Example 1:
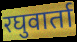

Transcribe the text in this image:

रघुवार्ता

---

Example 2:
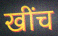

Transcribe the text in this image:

खींच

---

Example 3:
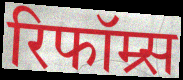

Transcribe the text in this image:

रिफॉम्र्स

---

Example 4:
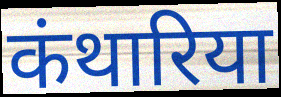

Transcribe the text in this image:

कंथारिया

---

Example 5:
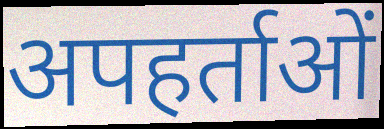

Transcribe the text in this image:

अपहर्ताओं